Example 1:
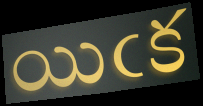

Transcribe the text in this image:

యిఁక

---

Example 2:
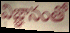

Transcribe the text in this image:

విజ్ఞానంతో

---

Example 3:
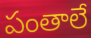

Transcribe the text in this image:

పంతాలే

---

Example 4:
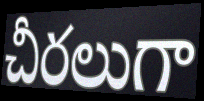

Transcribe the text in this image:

చీరలుగా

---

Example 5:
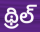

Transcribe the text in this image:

థ్రిల్